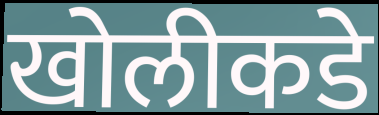
खोलीकडे